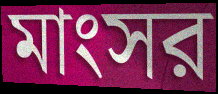
মাংসর